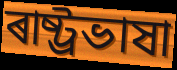
ৰাষ্ট্ৰভাষা